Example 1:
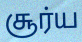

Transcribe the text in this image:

சூர்ய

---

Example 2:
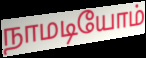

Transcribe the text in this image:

நாமடியோம்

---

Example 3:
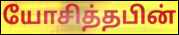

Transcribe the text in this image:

யோசித்தபின்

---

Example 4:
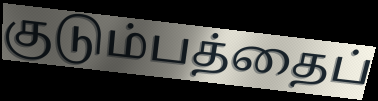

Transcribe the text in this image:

குடும்பத்தைப்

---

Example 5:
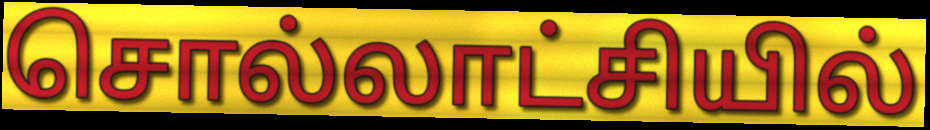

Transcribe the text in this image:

சொல்லாட்சியில்